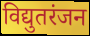
विद्युतरंजन